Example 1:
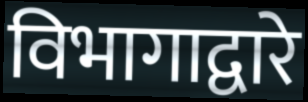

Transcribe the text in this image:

विभागाद्वारे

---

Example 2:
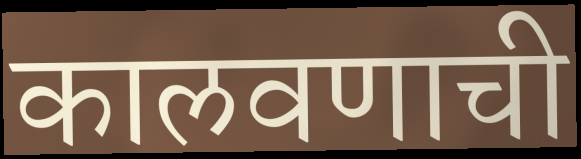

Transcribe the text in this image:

कालवणाची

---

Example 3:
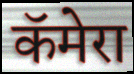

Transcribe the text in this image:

कॅमेरा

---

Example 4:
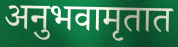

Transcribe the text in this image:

अनुभवामृतात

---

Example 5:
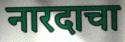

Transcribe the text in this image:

नारदाचा